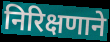
निरिक्षणाने